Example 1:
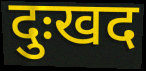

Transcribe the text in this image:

दुःखद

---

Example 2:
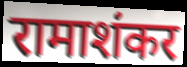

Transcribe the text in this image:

रामाशंकर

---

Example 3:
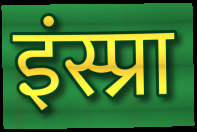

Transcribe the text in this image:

इंस्प्रा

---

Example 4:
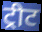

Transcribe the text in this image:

ट्रीट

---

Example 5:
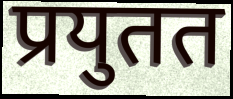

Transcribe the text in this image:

प्रयुतत